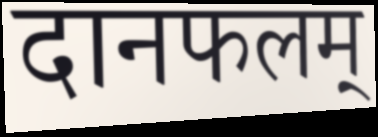
दानफलम्